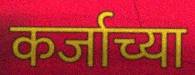
कर्जाच्या